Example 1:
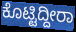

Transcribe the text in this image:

ಕೊಟ್ಟಿದ್ದೀರಾ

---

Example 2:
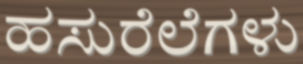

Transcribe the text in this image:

ಹಸುರೆಲೆಗಳು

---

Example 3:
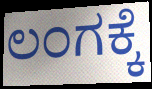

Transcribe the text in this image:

ಲಂಗಕ್ಕೆ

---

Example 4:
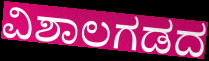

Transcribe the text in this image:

ವಿಶಾಲಗಡದ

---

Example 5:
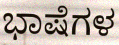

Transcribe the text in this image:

ಭಾಷೆಗಳ